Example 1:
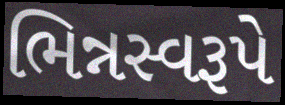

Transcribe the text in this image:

ભિન્નસ્વરૂપે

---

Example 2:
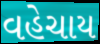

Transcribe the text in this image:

વહેચાય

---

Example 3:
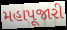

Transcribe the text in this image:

મહાપૂજારી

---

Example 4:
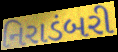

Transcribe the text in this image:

નિરાડંબરી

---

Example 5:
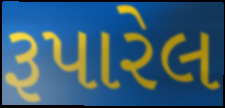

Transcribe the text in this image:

રૂપારેલ